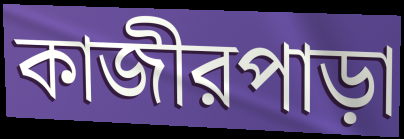
কাজীরপাড়া